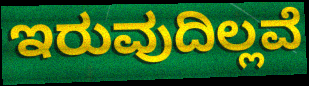
ಇರುವುದಿಲ್ಲವೆ